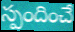
స్పందించే